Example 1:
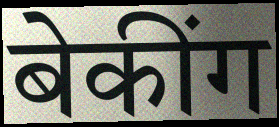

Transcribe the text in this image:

बेकींग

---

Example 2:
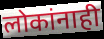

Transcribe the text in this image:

लोकांनाही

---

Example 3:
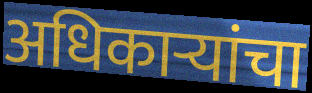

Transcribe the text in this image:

अधिकाऱ्यांचा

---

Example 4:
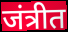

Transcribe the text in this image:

जंत्रीत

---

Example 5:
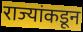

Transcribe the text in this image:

राज्यांकडून